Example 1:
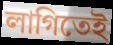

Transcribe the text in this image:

লাগিতেই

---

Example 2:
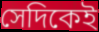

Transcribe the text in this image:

সেদিকেই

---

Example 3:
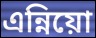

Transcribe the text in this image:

এন্নিয়ো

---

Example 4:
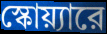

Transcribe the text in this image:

স্কোয়্যারে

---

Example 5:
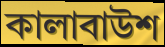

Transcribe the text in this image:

কালাবাউশ